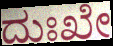
ದುಃಖೇ